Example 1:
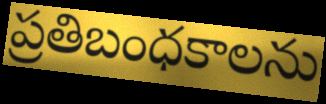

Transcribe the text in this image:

ప్రతిబంధకాలను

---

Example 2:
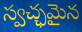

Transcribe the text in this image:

స్వచ్ఛమైన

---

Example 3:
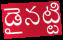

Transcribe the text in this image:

డైనట్టి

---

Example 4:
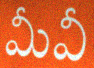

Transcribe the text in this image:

మీవీ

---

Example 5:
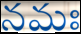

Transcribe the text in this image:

నమః